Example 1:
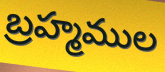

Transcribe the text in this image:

బ్రహ్మముల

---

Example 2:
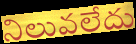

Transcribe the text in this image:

నిలువలేదు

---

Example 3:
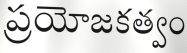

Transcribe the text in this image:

ప్రయోజకత్వం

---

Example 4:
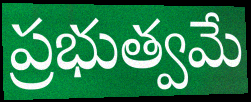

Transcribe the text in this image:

ప్రభుత్వమే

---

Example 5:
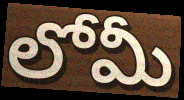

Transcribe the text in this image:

లోమీ